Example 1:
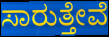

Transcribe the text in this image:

ಸಾರುತ್ತೇವೆ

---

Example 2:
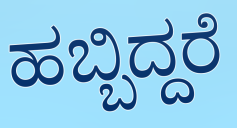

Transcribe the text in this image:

ಹಬ್ಬಿದ್ದರೆ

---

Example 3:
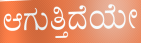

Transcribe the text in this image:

ಆಗುತ್ತಿದೆಯೇ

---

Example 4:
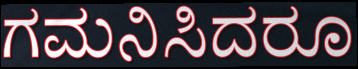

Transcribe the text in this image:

ಗಮನಿಸಿದರೂ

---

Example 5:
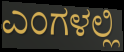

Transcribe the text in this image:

ಎಂಗಳಲ್ಲಿ